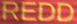
REDD